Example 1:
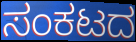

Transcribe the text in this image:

ಸಂಕಟದ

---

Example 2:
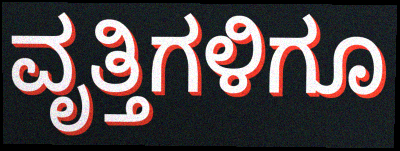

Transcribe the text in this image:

ವೃತ್ತಿಗಳಿಗೂ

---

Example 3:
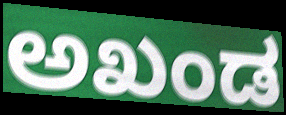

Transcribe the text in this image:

ಅಖಂಡ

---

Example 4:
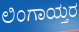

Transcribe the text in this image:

ಲಿಂಗಾಯ್ತರ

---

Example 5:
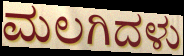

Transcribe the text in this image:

ಮಲಗಿದಳು